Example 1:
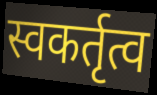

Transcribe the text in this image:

स्वकर्तृत्व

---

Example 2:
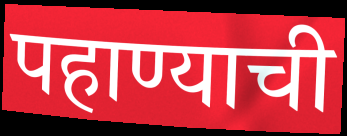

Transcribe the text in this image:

पहाण्याची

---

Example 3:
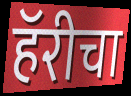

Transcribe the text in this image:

हॅरीचा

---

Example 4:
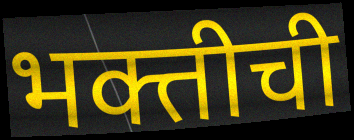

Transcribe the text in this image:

भक्तीची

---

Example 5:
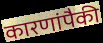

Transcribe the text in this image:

कारणांपैकी